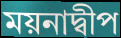
ময়নাদ্বীপ